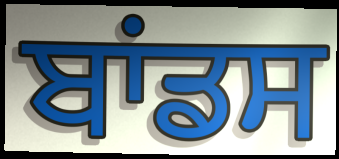
ਬਾਂਡਸ